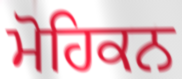
ਮੋਹਿਕਨ